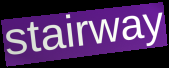
stairway